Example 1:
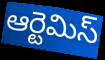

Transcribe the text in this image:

ఆర్టెమిస్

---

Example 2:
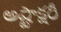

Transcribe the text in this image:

అష్టాక్షరీ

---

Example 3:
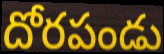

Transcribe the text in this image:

దోరపండు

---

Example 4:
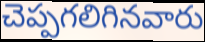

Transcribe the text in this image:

చెప్పగలిగినవారు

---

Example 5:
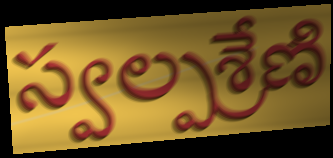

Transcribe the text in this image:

స్వల్పశ్రేణి